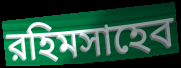
রহিমসাহেব